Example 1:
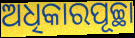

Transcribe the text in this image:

ଅଧିକାରପୂଚ୍ଛା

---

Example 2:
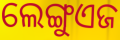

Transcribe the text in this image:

ଲେଙ୍ଗୁଏଜ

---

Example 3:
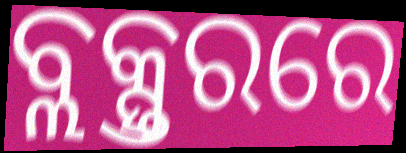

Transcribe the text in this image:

ବ୍ଲକ୍ସ୍ତରରେ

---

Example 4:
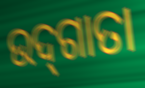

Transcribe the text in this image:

ଉଦ୍‌ଗାତା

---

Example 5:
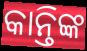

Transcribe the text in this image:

କାନ୍ତିଙ୍କ